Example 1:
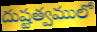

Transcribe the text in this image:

దుష్టత్వములో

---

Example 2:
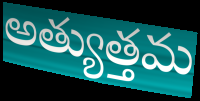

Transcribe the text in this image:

అత్యుత్తమ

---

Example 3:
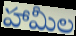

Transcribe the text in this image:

హామీల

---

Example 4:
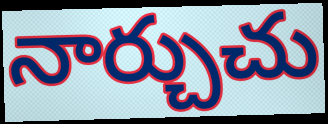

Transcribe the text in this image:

నార్చుచు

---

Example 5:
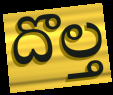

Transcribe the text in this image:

దొల్త